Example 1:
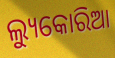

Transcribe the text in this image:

ଲ୍ୟୁକୋରିଆ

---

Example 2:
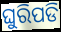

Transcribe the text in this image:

ଘୁରିପଡି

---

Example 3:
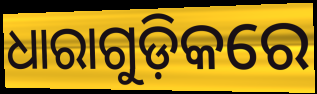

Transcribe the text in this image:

ଧାରାଗୁଡ଼ିକରେ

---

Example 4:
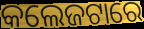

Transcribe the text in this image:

କଲେଜଟାରେ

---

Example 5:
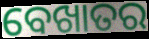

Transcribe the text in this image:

ବେଖାତର